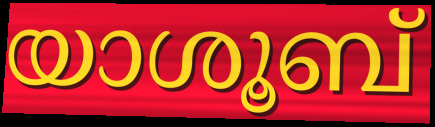
യാശൂബ്